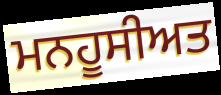
ਮਨਹੂਸੀਅਤ